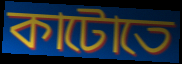
কাটোতে